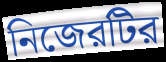
নিজেরটির